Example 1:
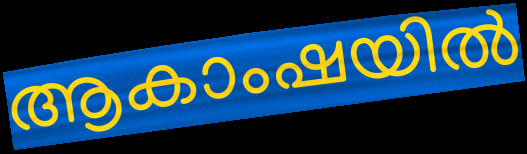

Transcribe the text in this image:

ആകാംഷയിൽ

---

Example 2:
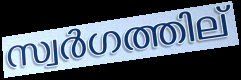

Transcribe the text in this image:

സ്വർഗത്തില്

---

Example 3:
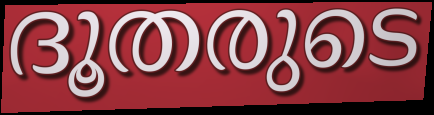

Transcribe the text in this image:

ദൂതരുടെ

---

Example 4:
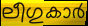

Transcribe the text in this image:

ലീഗുകാർ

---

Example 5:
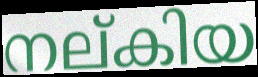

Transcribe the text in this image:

നല്കിയ